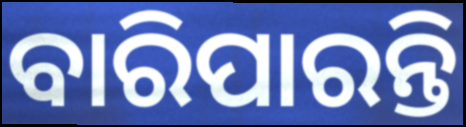
ବାରିପାରନ୍ତି